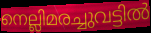
നെല്ലിമരച്ചുവട്ടിൽ